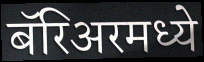
बॅरिअरमध्ये